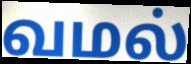
வமல்